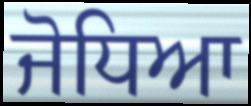
ਜੋਧਿਆ